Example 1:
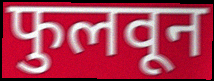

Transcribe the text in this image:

फुलवून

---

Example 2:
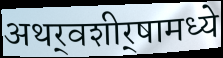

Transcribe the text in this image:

अथर्वशीर्षामध्ये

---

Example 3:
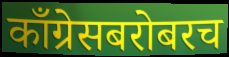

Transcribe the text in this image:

काँग्रेसबरोबरच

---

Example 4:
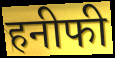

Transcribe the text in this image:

हनीफी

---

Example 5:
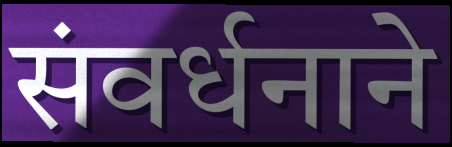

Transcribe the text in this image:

संवर्धनाने